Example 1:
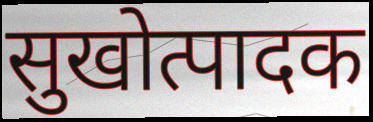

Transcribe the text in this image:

सुखोत्पादक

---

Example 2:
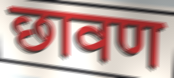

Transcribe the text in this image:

छावण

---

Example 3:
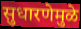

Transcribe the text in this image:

सुधारणेमुळे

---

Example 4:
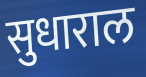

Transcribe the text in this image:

सुधाराल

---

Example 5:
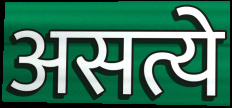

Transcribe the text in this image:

असत्ये